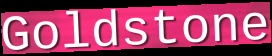
Goldstone